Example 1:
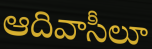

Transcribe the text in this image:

ఆదివాసీలూ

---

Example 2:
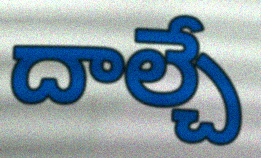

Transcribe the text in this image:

దాల్చే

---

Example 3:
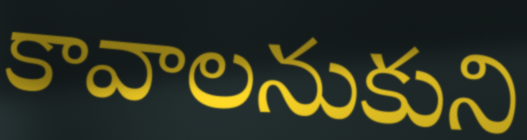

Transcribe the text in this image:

కావాలనుకుని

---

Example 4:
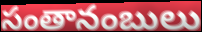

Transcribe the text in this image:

సంతానంబులు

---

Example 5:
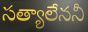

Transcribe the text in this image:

సత్యాలేననీ